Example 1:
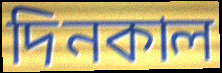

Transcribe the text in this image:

দিনকাল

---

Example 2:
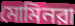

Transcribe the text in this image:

মোমিনরা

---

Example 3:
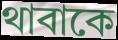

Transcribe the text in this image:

থাবাকে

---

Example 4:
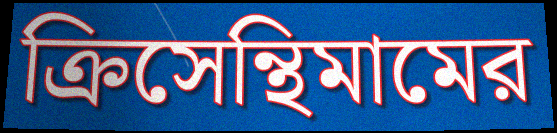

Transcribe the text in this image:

ক্রিসেন্থিমামের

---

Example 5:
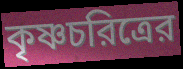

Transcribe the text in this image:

কৃষ্ণচরিত্রের